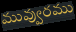
మువ్వురము